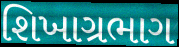
શિખાગ્રભાગ